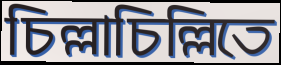
চিল্লাচিল্লিতে